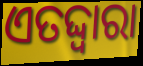
ଏତଦ୍ଦ୍ୱାରା